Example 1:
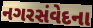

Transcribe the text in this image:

નગરસંવેદના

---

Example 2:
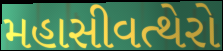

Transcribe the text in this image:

મહાસીવત્થેરો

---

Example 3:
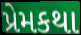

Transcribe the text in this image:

પ્રેમકથા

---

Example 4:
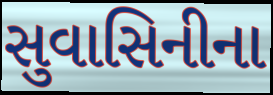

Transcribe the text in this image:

સુવાસિનીના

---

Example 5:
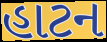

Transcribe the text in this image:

હાટન